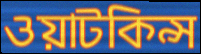
ওয়াটকিন্স